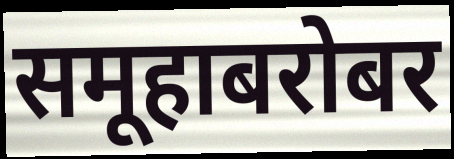
समूहाबरोबर